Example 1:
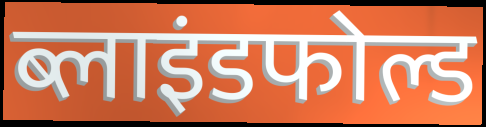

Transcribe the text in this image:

ब्लाइंडफोल्ड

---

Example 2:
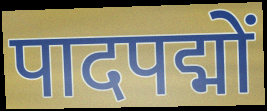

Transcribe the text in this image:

पादपद्मों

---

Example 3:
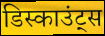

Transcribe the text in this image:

डिस्काउंट्स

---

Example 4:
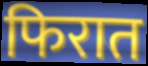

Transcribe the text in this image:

फिरात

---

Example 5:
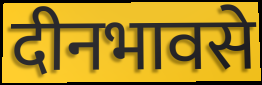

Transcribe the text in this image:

दीनभावसे